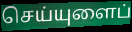
செய்யுளைப்